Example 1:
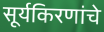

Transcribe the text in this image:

सूर्यकिरणांचे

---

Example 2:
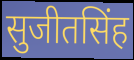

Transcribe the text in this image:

सुजीतसिंह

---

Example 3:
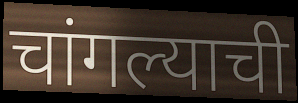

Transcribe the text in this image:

चांगल्याची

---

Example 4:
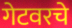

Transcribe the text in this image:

गेटवरचे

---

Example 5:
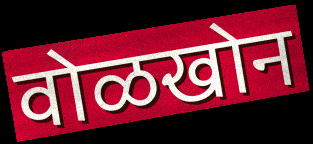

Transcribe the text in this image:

वोळखोन